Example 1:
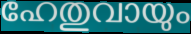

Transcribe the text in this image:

ഹേതുവായും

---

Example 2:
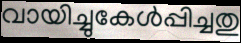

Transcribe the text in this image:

വായിച്ചുകേൾപ്പിച്ചതു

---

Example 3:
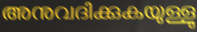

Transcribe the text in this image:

അനുവദിക്കുകയുള്ളു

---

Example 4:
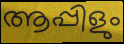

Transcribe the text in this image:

ആപ്പിളും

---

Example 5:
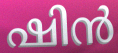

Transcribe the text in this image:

ഷിൻ